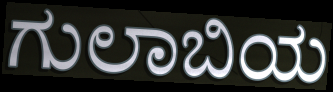
ಗುಲಾಬಿಯ